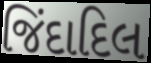
જિંદાદિલ